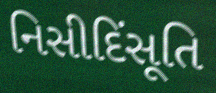
નિસીદિંસૂતિ